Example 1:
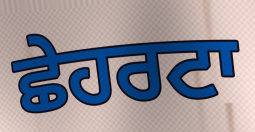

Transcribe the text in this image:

ਛੇਹਰਟਾ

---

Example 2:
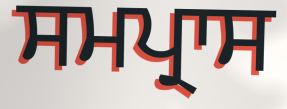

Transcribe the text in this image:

ਸਮਪ੍ਰਾਸ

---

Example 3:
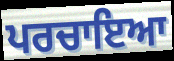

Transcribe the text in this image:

ਪਰਚਾਇਆ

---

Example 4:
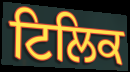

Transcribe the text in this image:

ਟਿਲਿਕ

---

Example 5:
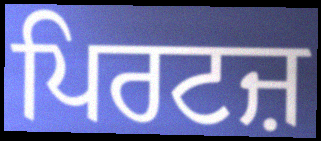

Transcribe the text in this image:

ਪਿਰਟਜ਼